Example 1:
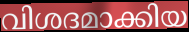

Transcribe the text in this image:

വിശദമാക്കിയ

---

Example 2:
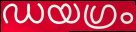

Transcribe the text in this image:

ഡയഗ്രം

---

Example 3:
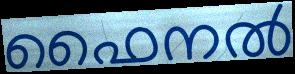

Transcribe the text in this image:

ഫൈനൽ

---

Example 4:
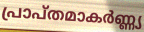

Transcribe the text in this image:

പ്രാപ്തമാകർണ്ണ്യ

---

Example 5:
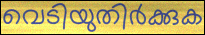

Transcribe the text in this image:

വെടിയുതിർക്കുക